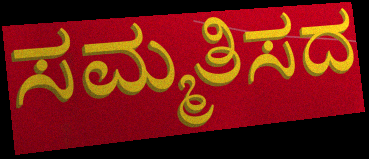
ಸಮ್ಮತಿಸದ